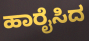
ಹಾರೈಸಿದ